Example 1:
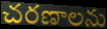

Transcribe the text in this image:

చరణాలను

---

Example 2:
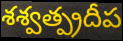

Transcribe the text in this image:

శశ్వత్ప్రదీప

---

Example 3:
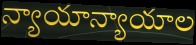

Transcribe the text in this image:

న్యాయాన్యాయాల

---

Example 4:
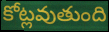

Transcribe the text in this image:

కోట్లవుతుంది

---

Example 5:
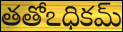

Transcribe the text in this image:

తతోఽధికమ్